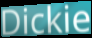
Dickie